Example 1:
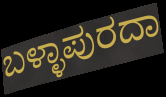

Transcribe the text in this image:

ಬಳ್ಳಾಪುರದಾ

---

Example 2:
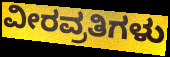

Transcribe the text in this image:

ವೀರವ್ರತಿಗಳು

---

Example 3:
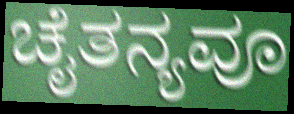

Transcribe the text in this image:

ಚೈತನ್ಯವೂ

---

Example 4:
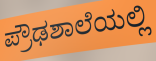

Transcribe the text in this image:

ಪ್ರೌಢಶಾಲೆಯಲ್ಲಿ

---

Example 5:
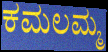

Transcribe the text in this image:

ಕಮಲಮ್ಮ